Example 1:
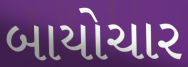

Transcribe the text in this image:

બાયોચાર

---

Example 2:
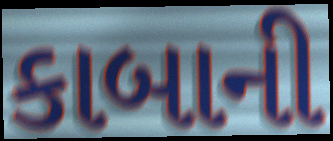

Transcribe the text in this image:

કાબાની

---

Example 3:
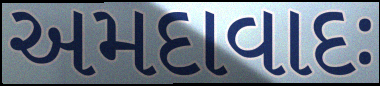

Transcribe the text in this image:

અમદાવાદઃ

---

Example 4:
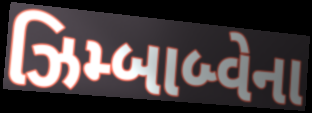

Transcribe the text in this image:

ઝિમ્બાબ્વેના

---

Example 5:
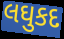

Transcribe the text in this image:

લઘુકદ